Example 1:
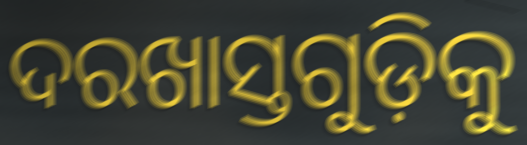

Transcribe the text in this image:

ଦରଖାସ୍ତଗୁଡ଼ିକୁ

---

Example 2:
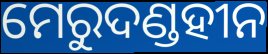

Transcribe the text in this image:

ମେରୁଦଣ୍ଡହୀନ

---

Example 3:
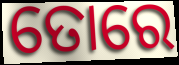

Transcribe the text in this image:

ତୋରେ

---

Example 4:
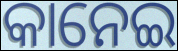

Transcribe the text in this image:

କାନେଇ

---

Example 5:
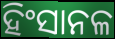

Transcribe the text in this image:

ହିଂସାନଳ